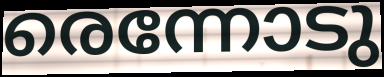
രെന്നോടു